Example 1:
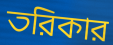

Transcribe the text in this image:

তরিকার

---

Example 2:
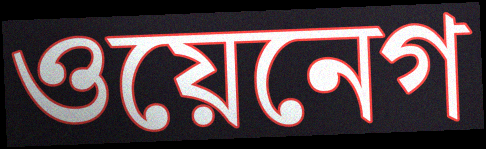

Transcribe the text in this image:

ওয়েনেগ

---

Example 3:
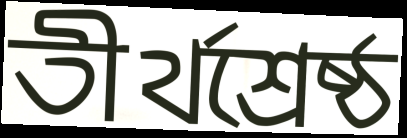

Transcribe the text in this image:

তীর্থশ্রেষ্ঠ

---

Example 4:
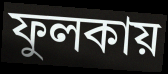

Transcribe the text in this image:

ফুলকায়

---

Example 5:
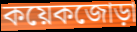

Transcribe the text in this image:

কয়েকজোড়া